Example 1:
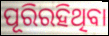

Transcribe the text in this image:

ପୂରିରହିଥିବା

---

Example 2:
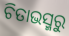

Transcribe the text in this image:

ଚିତାଭସ୍ମରୁ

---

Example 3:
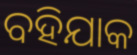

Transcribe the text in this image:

ବହିଯାକ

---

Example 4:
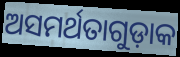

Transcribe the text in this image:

ଅସମର୍ଥତାଗୁଡ଼ାକ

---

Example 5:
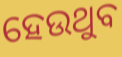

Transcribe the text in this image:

ହେଉଥୁବ